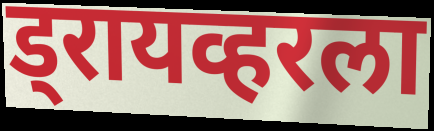
ड्रायव्हरला